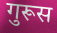
गुरूस